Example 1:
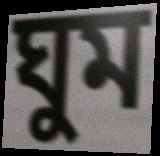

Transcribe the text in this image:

ঘুম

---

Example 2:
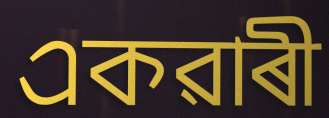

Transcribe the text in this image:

একৱাৰী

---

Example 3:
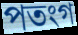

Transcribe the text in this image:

পতংগ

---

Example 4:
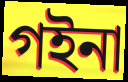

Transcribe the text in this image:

গইনা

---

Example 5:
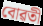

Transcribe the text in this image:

বোৱতী